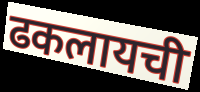
ढकलायची